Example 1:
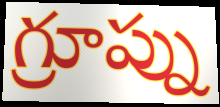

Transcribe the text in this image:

గ్రూప్ను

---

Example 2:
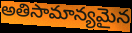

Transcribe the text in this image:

అతిసామాన్యమైన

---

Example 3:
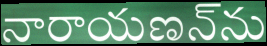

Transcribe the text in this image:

నారాయణన్‌ను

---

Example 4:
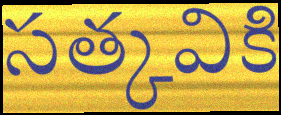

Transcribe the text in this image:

సత్కవికి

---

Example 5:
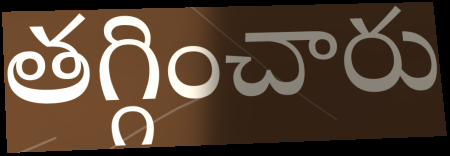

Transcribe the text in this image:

తగ్గించారు